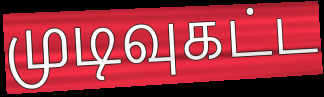
முடிவுகட்ட